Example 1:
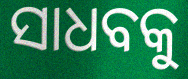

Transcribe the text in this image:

ସାଧବକୁ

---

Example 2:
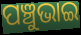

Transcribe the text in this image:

ପଞ୍ଚୁଭାଇ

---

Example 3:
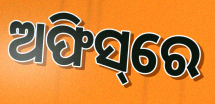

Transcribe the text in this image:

ଅଫିସ୍‌ରେ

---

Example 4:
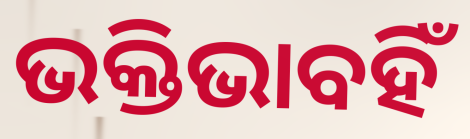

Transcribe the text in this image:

ଭକ୍ତିଭାବହିଁ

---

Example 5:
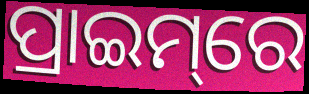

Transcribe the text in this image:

ପ୍ରାଇମ୍‌ରେ